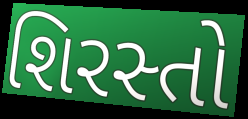
શિરસ્તો